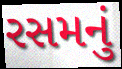
રસમનું